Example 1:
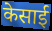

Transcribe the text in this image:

केसाई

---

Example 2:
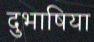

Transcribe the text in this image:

दुभाषिया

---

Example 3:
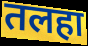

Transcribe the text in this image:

तलहा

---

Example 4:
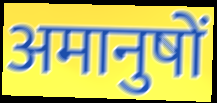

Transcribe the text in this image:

अमानुषों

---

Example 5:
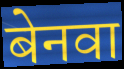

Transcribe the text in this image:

बेनवा